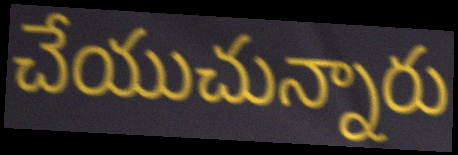
చేయుచున్నారు